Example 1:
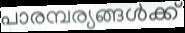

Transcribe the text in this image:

പാരമ്പര്യങ്ങൾക്ക്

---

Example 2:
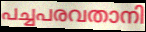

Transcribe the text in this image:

പച്ചപരവതാനി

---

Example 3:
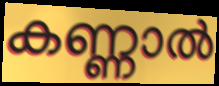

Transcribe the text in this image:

കണ്ണാൽ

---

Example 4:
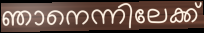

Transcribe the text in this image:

ഞാനെന്നിലേക്ക്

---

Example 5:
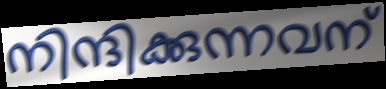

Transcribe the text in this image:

നിന്ദിക്കുന്നവന്